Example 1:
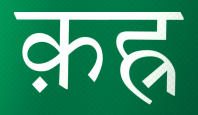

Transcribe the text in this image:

क़ह्र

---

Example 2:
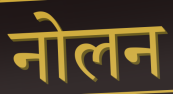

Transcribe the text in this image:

नोलन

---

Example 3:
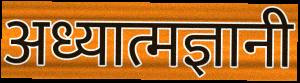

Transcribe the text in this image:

अध्यात्मज्ञानी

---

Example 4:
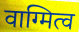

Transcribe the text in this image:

वाग्मित्व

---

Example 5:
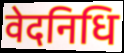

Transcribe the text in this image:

वेदनिधि